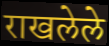
राखलेले